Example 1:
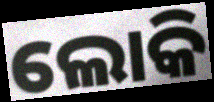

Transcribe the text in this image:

ଲୋକି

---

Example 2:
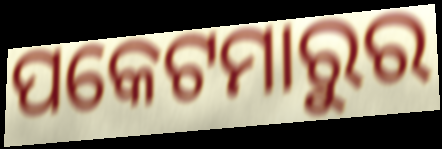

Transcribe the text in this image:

ପକେଟମାରୁର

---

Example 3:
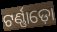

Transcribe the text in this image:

ଟର୍ଣ୍ଣାଡ଼ୋ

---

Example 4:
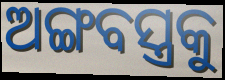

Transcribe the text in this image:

ଅଙ୍ଗବସ୍ତ୍ରକୁ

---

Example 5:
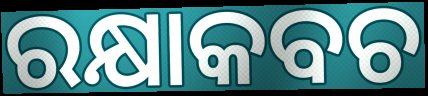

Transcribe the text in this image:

ରକ୍ଷାକବଚ